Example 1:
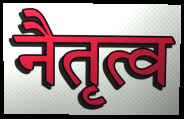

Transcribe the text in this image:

नैतृत्व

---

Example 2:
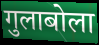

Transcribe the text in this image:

गुलाबोला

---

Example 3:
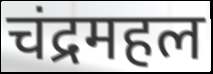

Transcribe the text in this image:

चंद्रमहल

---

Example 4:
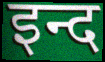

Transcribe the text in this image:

इन्द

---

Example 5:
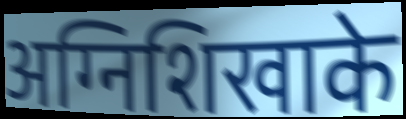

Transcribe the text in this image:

अग्निशिखाके